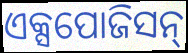
ଏକ୍ସପୋଜିସନ୍